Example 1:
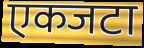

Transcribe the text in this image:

एकजटा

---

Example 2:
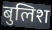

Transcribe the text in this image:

बुलिश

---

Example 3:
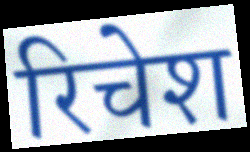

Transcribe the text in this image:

रिचेश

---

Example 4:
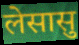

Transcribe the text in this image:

लेसासु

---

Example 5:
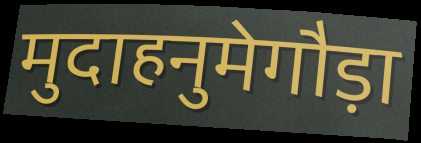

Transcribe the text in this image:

मुदाहनुमेगौड़ा